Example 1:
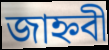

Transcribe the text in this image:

জাহ্নবী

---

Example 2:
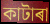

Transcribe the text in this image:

কাটাৰা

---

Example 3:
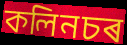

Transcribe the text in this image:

কলিনচৰ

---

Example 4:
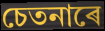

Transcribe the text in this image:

চেতনাৰে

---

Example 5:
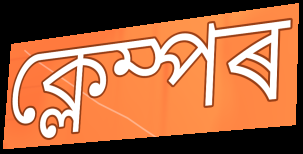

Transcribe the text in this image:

ক্লেম্পৰ